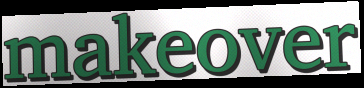
makeover